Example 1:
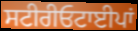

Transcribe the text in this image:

ਸਟੀਰੀਓਟਾਈਪਾਂ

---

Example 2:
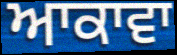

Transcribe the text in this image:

ਆਕਾਵਾ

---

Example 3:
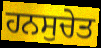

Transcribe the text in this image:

ਹਨਸੁਚੇਤ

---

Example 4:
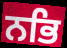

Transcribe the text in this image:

ਨਭਿ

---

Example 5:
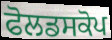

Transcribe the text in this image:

ਫੋਲਡਸਕੋਪ